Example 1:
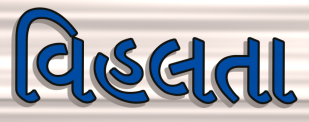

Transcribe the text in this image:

વિહલતા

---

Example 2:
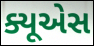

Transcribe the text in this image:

ક્યૂએસ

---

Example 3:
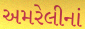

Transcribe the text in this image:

અમરેલીનાં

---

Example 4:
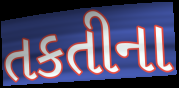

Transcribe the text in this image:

તકતીના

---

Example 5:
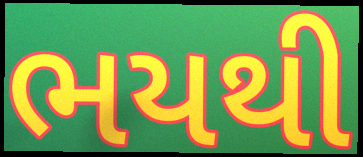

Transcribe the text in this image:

ભયથી